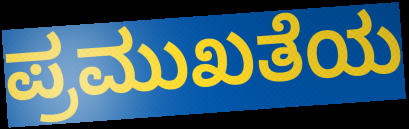
ಪ್ರಮುಖತೆಯ